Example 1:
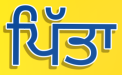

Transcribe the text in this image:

ਪਿੱਤਾ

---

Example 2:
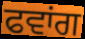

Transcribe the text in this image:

ਫਵਾਂਗ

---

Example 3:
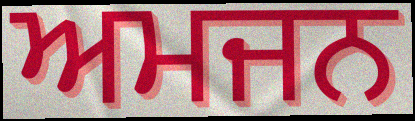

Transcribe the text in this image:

ਅਮਜਨ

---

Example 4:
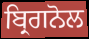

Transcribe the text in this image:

ਬ੍ਰਿਗਨੋਲ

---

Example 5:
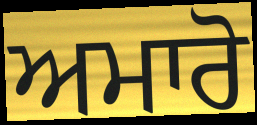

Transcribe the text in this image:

ਅਮਾਰੋ